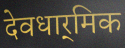
देवधार्मिक